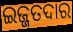
ଇଜ୍ଜତଦାର